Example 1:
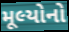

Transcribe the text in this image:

મૂલ્યોનો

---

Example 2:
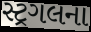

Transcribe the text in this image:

સ્ટ્રગલના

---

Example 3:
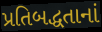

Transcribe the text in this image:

પ્રતિબદ્ધતાનાં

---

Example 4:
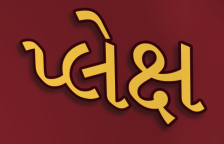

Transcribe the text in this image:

પ્લેક્ષ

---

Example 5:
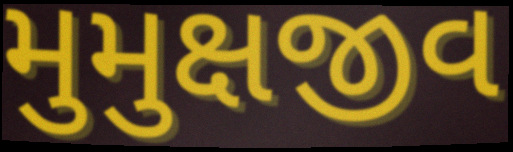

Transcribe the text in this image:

મુમુક્ષજીવ